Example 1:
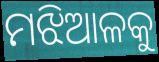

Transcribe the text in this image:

ମଝିଆଳକୁ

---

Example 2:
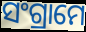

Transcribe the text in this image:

ସଂଗ୍ରାମେ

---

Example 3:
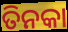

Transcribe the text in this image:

ତିନକା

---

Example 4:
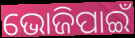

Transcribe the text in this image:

ଭୋଜିପାଇଁ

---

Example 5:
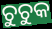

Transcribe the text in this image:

ଚୁଚୁକ